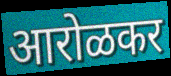
आरोळकर